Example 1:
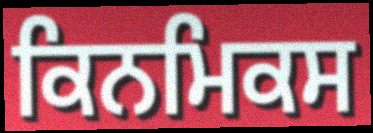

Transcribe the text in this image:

ਕਿਨਮਿਕਸ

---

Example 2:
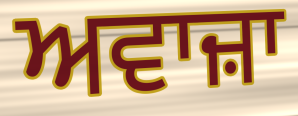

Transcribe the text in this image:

ਅਵਾਜ਼ਾ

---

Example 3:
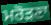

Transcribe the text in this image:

ਮਰੋੜਣਾ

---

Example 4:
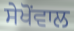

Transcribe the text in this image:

ਸੇਖੋਂਵਾਲ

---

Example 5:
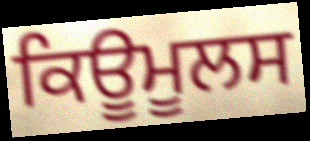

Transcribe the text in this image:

ਕਿਊਮੂਲਸ